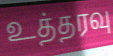
உத்தரவு